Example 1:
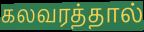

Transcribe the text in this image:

கலவரத்தால்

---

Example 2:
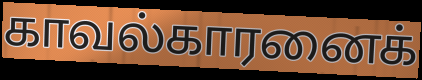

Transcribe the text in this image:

காவல்காரனைக்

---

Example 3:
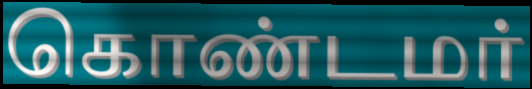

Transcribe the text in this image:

கொண்டமர்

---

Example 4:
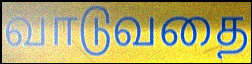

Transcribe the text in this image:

வாடுவதை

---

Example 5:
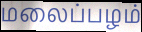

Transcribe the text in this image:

மலைப்பழம்